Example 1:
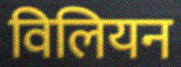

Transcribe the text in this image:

विलियन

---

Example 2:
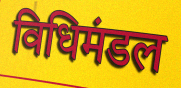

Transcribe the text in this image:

विधिमंडल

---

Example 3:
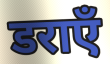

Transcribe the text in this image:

डराएँ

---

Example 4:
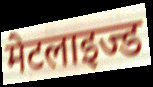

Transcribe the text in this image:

मेटलाइज्ड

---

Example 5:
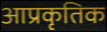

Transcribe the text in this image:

आप्रकृतिक